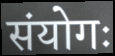
संयोगः